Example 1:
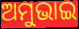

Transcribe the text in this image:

ଅମୁଭାଇ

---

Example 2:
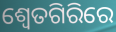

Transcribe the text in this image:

ଶ୍ୱେତଗିରିରେ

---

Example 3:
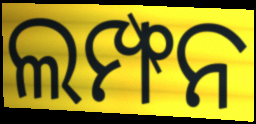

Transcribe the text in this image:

ଲମ୍ଫନ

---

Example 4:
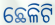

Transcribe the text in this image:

ଛେଳିଟି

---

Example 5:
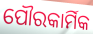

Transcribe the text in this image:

ପୌରକାର୍ମିକ